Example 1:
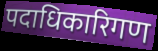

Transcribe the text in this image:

पदाधिकारिगण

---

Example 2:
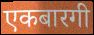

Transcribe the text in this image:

एकबारगी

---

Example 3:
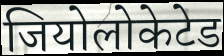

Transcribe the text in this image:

जियोलोकेटेड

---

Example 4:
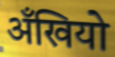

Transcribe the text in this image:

अँखियो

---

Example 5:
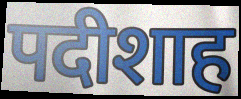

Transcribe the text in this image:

पदीशाह